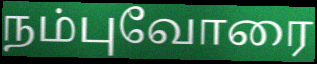
நம்புவோரை